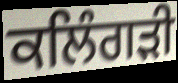
ਕਲਿੰਗੜੀ